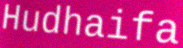
Hudhaifa